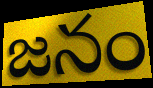
జనం